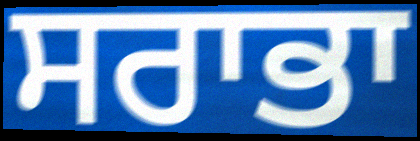
ਸਰਾਭਾ